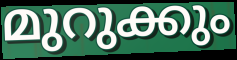
മുറുക്കും